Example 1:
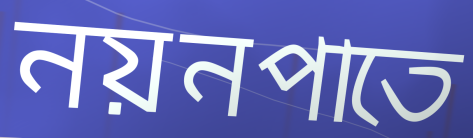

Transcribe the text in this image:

নয়নপাতে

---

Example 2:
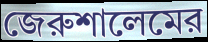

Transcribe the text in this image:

জেরুশালেমের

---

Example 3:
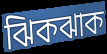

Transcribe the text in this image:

ঝিকঝাক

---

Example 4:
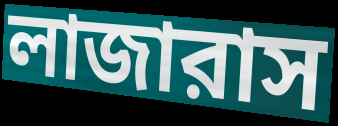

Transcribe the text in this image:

লাজারাস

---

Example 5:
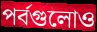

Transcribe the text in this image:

পর্বগুলোও